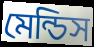
মেন্ডিস